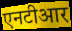
एनटीआर